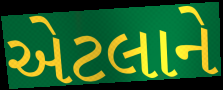
એટલાને